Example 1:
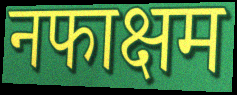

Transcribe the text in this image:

नफाक्षम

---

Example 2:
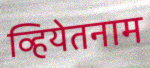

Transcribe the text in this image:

व्हियेतनाम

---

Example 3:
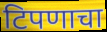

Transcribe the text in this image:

टिपणाचा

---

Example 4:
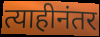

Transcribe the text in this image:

त्याहीनंतर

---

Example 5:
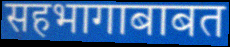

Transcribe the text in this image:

सहभागाबाबत